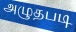
அழுதபடி